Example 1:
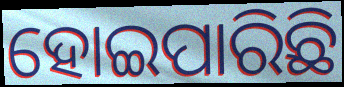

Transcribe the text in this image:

ହୋଇପାରିଛି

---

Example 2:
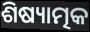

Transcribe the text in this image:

ଶିଷ୍ୟାତ୍ମକ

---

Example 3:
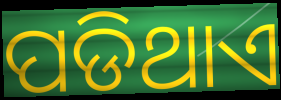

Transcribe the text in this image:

ପଡିଥାଏ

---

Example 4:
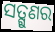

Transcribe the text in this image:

ସତ୍ଗୁଣର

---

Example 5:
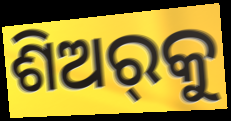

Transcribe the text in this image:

ଶିଅର୍‌କୁ